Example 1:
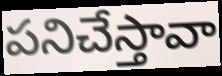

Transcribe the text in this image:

పనిచేస్తావా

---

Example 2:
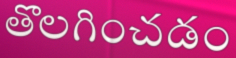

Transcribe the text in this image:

తొలగించడం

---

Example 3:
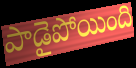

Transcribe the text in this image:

పాడైపోయింది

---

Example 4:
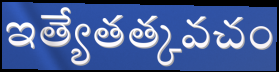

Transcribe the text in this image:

ఇత్యేతత్కవచం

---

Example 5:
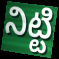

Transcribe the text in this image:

నిట్టి